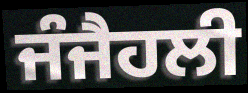
ਜੰਜੈਹਲੀ